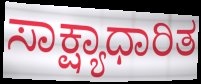
ಸಾಕ್ಷ್ಯಾಧಾರಿತ